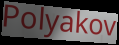
Polyakov